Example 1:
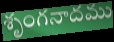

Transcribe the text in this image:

శృంగనాదము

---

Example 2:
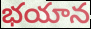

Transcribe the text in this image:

భయాన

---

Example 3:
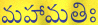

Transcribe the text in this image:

మహామతిః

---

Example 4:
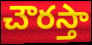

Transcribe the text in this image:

చౌరస్తా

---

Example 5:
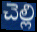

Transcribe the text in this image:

చెల్లి